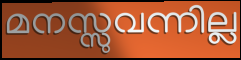
മനസ്സുവന്നില്ല